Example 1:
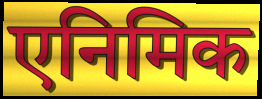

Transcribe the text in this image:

एनिमिक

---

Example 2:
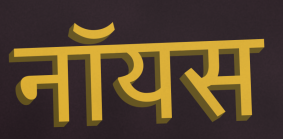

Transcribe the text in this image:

नॉयस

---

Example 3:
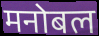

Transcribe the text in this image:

मनोबल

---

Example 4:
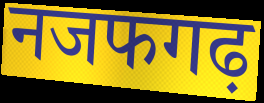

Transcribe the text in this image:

नजफगढ़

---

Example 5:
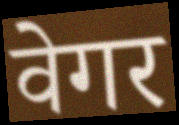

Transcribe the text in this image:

वेगर